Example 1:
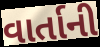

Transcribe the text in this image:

વાર્તાની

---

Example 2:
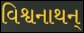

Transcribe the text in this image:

વિશ્વનાથન્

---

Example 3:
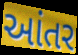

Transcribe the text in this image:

આંતર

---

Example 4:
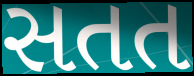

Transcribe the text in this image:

સતત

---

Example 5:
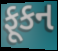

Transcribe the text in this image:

ફૂકન